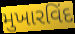
મુખારવિંદ